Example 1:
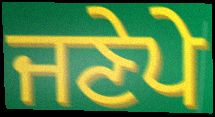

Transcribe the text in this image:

ਜਣੇਪੇ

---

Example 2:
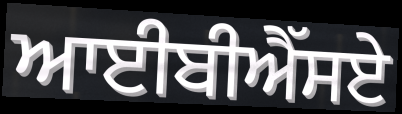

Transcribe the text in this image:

ਆਈਬੀਐੱਸਏ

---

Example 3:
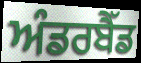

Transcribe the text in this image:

ਅੰਡਰਬੈੱਡ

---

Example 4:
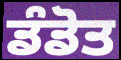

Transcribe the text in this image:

ਡੰਡੋਤ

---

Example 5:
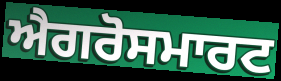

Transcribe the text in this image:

ਐਗਰੋਸਮਾਰਟ